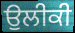
ਉਲੀਕੀ